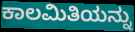
ಕಾಲಮಿತಿಯನ್ನು